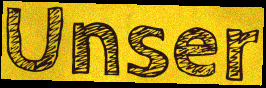
Unser